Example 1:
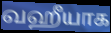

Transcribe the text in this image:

வஹீயாக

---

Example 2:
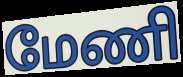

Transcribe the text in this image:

மேணி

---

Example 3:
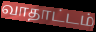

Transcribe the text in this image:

வாதாட்டம்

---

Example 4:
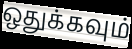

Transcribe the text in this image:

ஒதுக்கவும்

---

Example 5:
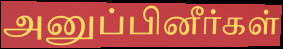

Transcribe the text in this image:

அனுப்பினீர்கள்